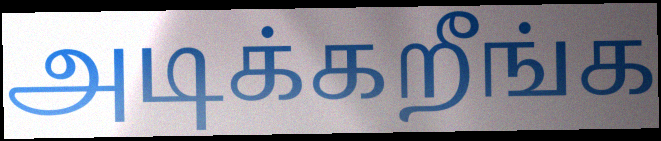
அடிக்கறீங்க